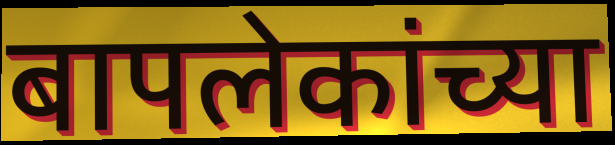
बापलेकांच्या